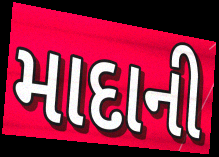
માદાની